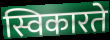
स्विकारते